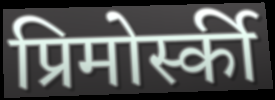
प्रिमोर्स्की